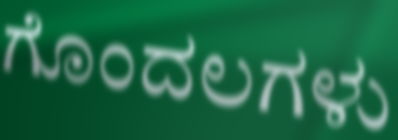
ಗೊಂದಲಗಳು